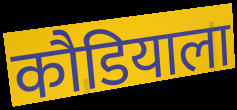
कौडियाला